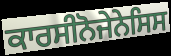
ਕਾਰਸੀਨੋਜੇਨੇਸਿਸ